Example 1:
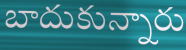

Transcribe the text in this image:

బాదుకున్నారు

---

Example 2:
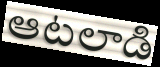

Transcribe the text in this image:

ఆటలాడి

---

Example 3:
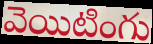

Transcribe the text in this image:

వెయిటింగు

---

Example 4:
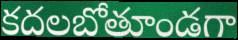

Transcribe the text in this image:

కదలబోతూండగా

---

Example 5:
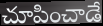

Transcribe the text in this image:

చూపించాడే